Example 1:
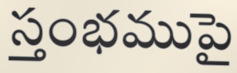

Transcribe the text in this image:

స్తంభముపై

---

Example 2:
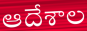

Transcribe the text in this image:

ఆదేశాల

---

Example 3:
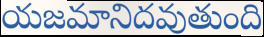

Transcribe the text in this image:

యజమానిదవుతుంది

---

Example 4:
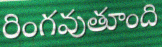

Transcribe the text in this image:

రింగవుతూంది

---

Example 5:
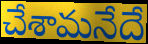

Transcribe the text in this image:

చేశామనేదే